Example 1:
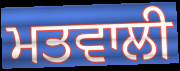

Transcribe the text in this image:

ਮਤਵਾਲੀ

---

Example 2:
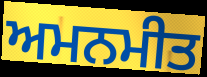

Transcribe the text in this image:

ਅਮਨਮੀਤ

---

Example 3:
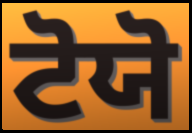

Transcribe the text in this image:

ਟੋਯੋ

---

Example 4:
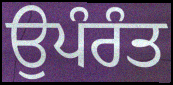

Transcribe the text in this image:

ਉਪੰਰੰਤ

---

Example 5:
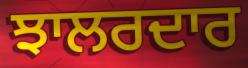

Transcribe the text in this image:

ਝਾਲਰਦਾਰ